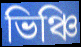
ভিঞ্চি